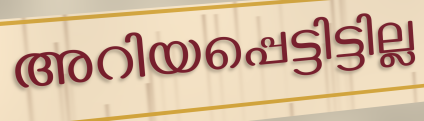
അറിയപ്പെട്ടിട്ടില്ല